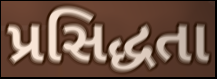
પ્રસિદ્ધતા